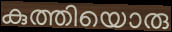
കുത്തിയൊരു